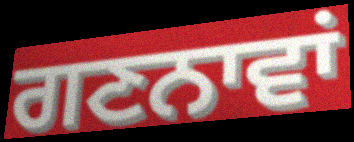
ਗਣਨਾਵਾਂ